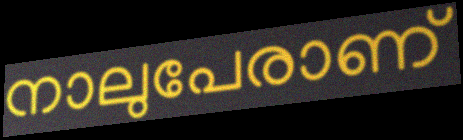
നാലുപേരാണ്